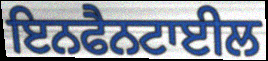
ਇਨਫੈਨਟਾਈਲ